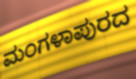
ಮಂಗಳಾಪುರದ